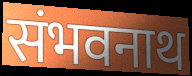
संभवनाथ